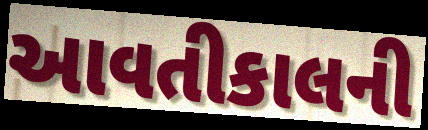
આવતીકાલની